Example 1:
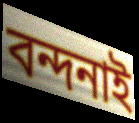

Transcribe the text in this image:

বন্দনাই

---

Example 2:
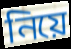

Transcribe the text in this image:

নিয়ে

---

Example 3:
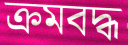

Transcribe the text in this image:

ক্ৰমবদ্ধ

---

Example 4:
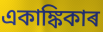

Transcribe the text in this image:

একাঙ্কিকাৰ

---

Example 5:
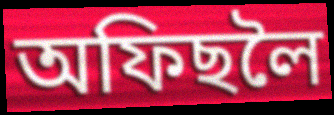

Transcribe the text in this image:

অফিছলৈ